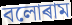
বলোৰাম